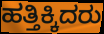
ಹತ್ತಿಕ್ಕಿದರು